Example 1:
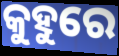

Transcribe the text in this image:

କୁହୁରେ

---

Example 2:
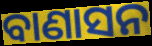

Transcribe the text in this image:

ବାଣାସନ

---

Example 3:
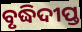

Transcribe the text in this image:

ବୃଦ୍ଧିଦୀପ୍ତ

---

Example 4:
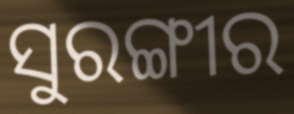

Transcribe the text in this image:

ସୁରଙ୍ଗୀର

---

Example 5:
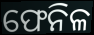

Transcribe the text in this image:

ଫେନିଳ